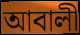
আবালী